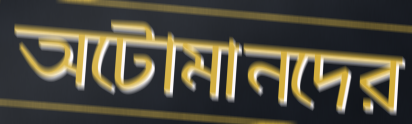
অটোমানদের